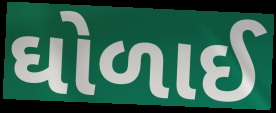
ઘોળાઈ